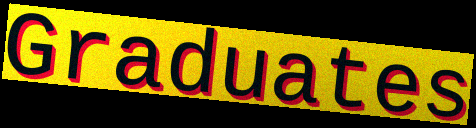
Graduates